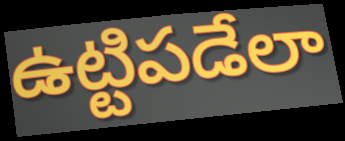
ఉట్టిపడేలా